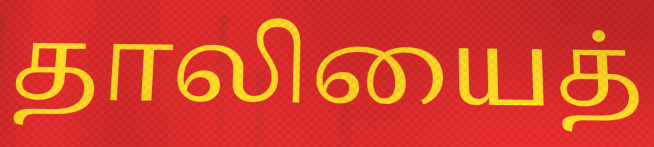
தாலியைத்